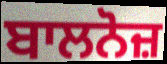
ਬਾਲਨੋਜ਼